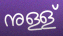
നുള്ള്